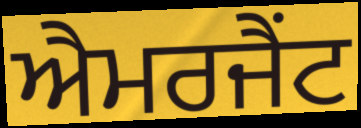
ਐਮਰਜੈਂਟ